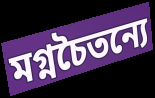
মগ্নচৈতন্যে